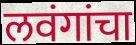
लवंगांचा